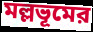
মল্লভূমের